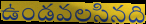
ఉండవలసినది